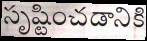
సృష్టించడానికి